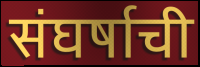
संघर्षाची